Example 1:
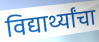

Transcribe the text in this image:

विद्यार्थ्यांचा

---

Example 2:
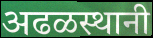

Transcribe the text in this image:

अढळस्थानी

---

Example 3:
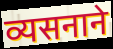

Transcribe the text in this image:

व्यसनाने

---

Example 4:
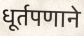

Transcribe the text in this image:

धूर्तपणाने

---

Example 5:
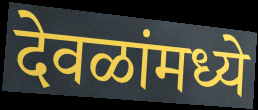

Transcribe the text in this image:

देवळांमध्ये